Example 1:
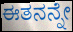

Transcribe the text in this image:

ಈತನನ್ನೇ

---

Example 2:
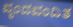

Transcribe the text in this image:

ವೃಂದವಂದಿತ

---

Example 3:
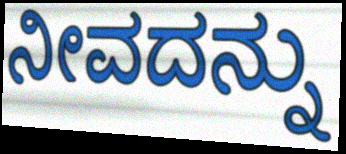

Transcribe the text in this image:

ನೀವದನ್ನು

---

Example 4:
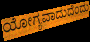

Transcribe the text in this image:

ಯೋಗ್ಯವಾದುದೆಂದು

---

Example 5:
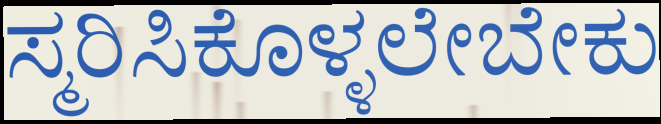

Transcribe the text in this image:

ಸ್ಮರಿಸಿಕೊಳ್ಳಲೇಬೇಕು